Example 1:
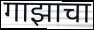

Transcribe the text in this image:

गाझाचा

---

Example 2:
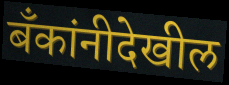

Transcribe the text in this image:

बँकांनीदेखील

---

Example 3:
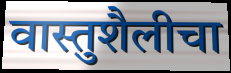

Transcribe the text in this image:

वास्तुशैलीचा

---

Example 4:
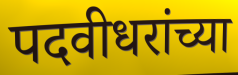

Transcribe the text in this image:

पदवीधरांच्या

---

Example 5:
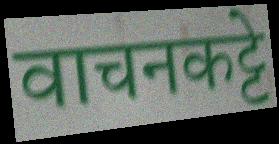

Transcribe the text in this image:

वाचनकट्टे